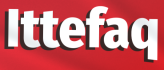
Ittefaq